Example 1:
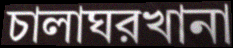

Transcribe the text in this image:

চালাঘরখানা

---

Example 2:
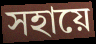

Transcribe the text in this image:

সহায়ে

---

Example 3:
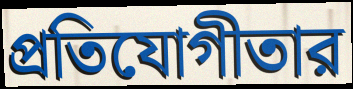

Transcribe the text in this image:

প্রতিযোগীতার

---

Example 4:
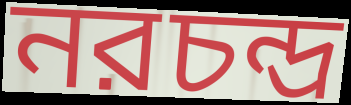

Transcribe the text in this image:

নরচন্দ্র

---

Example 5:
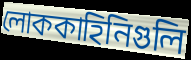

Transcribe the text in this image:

লোককাহিনিগুলি